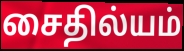
சைதில்யம்